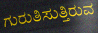
ಗುರುತಿಸುತ್ತಿರುವ